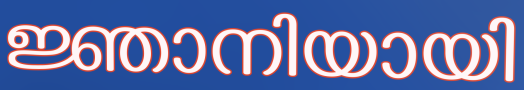
ജ്ഞാനിയായി